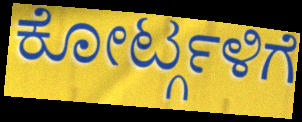
ಕೋರ್ಟ್ಗಳಿಗೆ